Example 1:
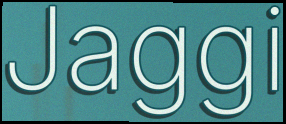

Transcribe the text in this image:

Jaggi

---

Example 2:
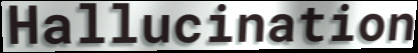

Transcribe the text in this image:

Hallucination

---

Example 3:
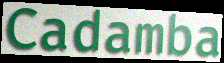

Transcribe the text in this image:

Cadamba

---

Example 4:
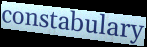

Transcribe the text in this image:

constabulary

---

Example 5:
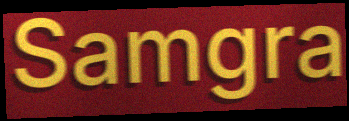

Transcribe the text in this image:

Samgra